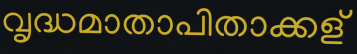
വൃദ്ധമാതാപിതാക്കള്